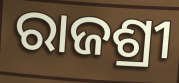
ରାଜଶ୍ରୀ